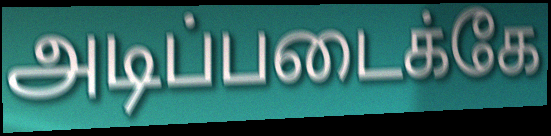
அடிப்படைக்கே